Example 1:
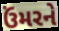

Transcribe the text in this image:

ઉંમરને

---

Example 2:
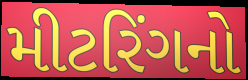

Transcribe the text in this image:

મીટરિંગનો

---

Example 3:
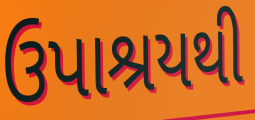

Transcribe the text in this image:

ઉપાશ્રયથી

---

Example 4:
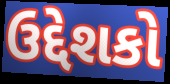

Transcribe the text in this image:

ઉદ્દેશકો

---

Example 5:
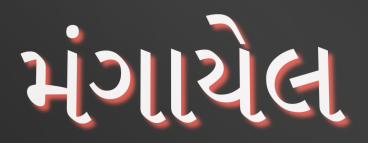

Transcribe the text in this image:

મંગાયેલ